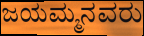
ಜಯಮ್ಮನವರು